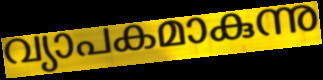
വ്യാപകമാകുന്നു